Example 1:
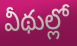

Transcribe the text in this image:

వీథుల్లో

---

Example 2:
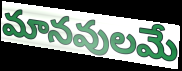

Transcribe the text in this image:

మానవులమే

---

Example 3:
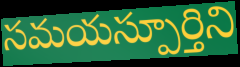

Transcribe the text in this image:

సమయస్పూర్తిని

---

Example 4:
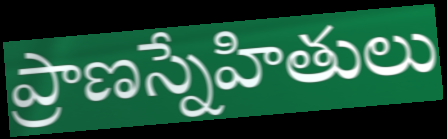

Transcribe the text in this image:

ప్రాణస్నేహితులు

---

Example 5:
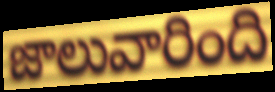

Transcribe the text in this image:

జాలువారింది